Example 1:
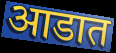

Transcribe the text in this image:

आडात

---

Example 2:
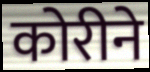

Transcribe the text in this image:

कोरीने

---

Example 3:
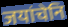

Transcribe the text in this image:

जयांचेनि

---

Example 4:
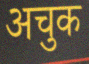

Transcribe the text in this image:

अचुक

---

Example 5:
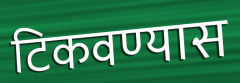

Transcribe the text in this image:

टिकवण्यास